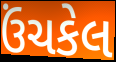
ઉંચકેલ